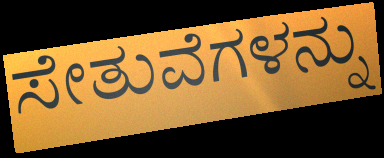
ಸೇತುವೆಗಳನ್ನು